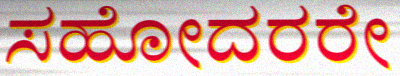
ಸಹೋದರರೇ